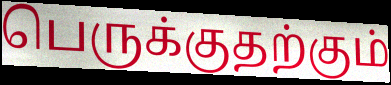
பெருக்குதற்கும்